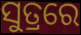
ସୁତ୍ରରେ